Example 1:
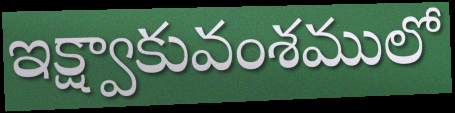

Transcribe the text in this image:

ఇక్ష్వాకువంశములో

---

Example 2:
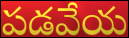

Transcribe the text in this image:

పడవేయ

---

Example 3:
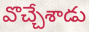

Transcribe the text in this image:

వొచ్చేశాడు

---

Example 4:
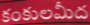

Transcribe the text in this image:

కంకులమీద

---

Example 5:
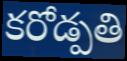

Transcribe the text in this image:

కరోడ్పతి